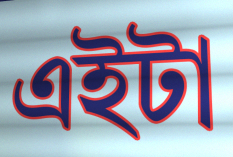
এইটা